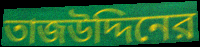
তাজউদ্দিনের